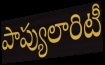
పాప్యులారిటీ